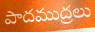
పాదముద్రలు